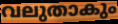
വലുതാകും